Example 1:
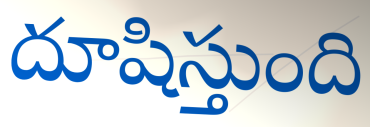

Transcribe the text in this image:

దూషిస్తుంది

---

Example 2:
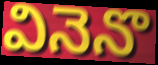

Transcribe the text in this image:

వినెనొ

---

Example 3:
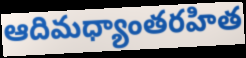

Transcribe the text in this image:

ఆదిమధ్యాంతరహిత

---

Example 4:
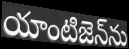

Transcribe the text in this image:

యాంటిజెన్‌ను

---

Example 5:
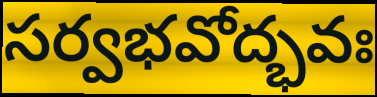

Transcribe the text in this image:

సర్వభవోద్భవః